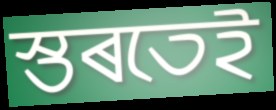
স্তৰতেই